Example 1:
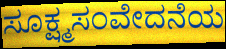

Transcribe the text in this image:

ಸೂಕ್ಷ್ಮಸಂವೇದನೆಯ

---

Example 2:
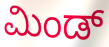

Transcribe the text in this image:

ಮಿಂಡ್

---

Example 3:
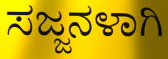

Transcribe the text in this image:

ಸಜ್ಜನಳಾಗಿ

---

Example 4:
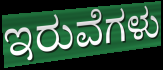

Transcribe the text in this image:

ಇರುವೆಗಳು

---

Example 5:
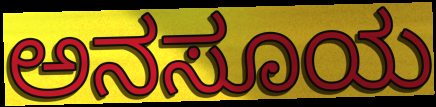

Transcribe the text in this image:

ಅನಸೂಯ